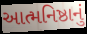
આત્મનિષ્ઠાનું